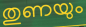
തുണയും